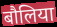
बौलिया